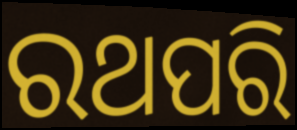
ରଥପରି